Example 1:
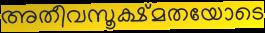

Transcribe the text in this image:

അതീവസൂക്ഷ്മതയോടെ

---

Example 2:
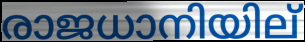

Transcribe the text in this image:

രാജധാനിയില്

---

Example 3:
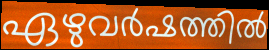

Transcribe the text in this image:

ഏഴുവർഷത്തിൽ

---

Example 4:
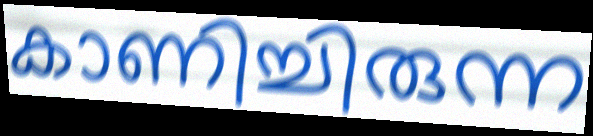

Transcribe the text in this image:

കാണിച്ചിരുന്ന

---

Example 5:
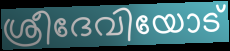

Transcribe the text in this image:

ശ്രീദേവിയോട്